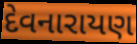
દેવનારાયણ